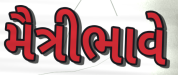
મૈત્રીભાવે